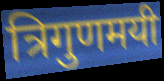
त्रिगुणमयी